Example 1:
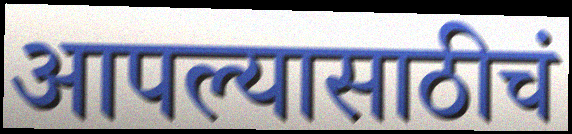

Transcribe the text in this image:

आपल्यासाठीचं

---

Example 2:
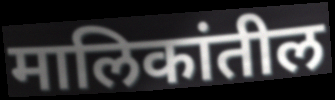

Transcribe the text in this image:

मालिकांतील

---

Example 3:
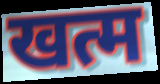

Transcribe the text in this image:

खत्म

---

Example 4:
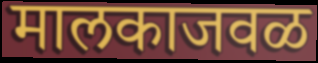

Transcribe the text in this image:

मालकाजवळ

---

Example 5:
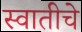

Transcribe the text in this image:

स्वातीचे